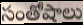
సంతోషాలు